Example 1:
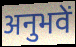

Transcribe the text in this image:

अनुभवें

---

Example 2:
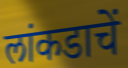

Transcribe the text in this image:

लांकडाचें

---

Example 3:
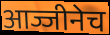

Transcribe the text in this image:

आज्जीनेच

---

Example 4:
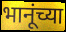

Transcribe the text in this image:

भानूंच्या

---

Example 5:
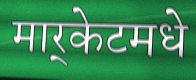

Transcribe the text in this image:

मार्केटमधे